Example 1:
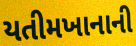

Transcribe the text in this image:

યતીમખાનાની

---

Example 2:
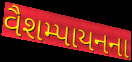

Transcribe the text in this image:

વૈશમ્પાયનના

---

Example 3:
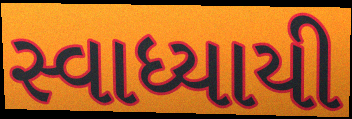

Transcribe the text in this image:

સ્વાધ્યાયી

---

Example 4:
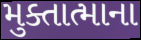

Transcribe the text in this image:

મુક્તાત્માના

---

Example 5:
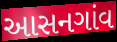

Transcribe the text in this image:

આસનગાંવ